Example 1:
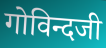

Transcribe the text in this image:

गोविन्दजी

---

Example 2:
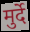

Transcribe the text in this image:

मुर्दे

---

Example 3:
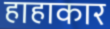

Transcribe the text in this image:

हाहाकार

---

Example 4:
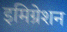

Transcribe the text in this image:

इमिग्रेशन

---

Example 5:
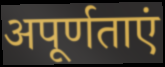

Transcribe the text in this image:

अपूर्णताएं